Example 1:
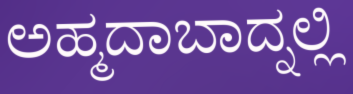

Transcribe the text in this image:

ಅಹ್ಮದಾಬಾದ್ನಲ್ಲಿ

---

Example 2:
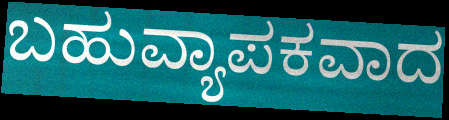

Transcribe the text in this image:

ಬಹುವ್ಯಾಪಕವಾದ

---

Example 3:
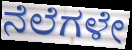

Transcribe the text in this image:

ನೆಲೆಗಳೇ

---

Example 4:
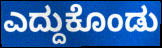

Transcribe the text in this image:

ಎದ್ದುಕೊಂಡು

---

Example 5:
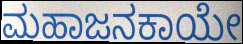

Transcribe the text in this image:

ಮಹಾಜನಕಾಯೇ